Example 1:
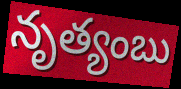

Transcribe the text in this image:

నృత్యంబు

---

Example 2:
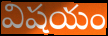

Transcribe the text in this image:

విషయం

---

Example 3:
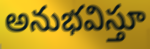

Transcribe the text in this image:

అనుభవిస్తూ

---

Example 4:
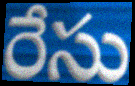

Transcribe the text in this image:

రేసు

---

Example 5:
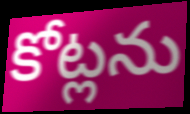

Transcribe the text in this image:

కోట్లను